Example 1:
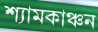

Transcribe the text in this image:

শ্যামকাঞ্চন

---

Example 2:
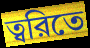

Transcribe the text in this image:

ত্বরিতে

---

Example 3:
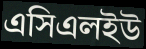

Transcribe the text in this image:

এসিএলইউ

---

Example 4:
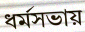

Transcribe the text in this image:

ধর্মসভায়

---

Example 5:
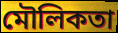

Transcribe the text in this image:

মৌলিকতা